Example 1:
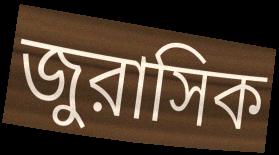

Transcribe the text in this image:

জুরাসিক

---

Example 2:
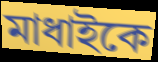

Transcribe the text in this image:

মাধাইকে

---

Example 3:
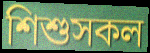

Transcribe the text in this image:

শিশুসকল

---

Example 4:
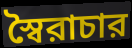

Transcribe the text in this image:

স্বৈরাচার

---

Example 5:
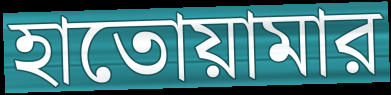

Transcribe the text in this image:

হাতোয়ামার